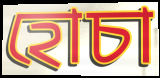
হোচা